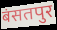
बंसतपुर